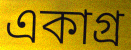
একাগ্র